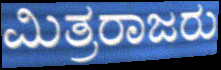
ಮಿತ್ರರಾಜರು